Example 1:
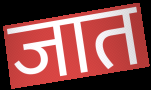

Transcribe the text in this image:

जात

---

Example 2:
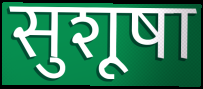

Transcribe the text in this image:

सुश्रूषा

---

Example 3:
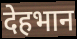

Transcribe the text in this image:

देहभान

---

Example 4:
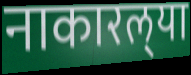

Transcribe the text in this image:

नाकारल्या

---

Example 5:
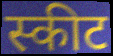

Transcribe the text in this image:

स्कीट